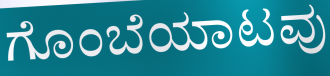
ಗೊಂಬೆಯಾಟವು